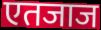
एतजाज